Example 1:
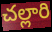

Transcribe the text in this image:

చల్లారి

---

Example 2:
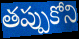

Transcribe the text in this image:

తప్పుకోని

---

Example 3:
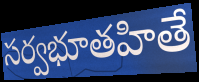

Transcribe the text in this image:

సర్వభూతహితే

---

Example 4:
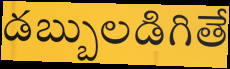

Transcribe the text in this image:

డబ్బులడిగితే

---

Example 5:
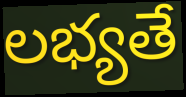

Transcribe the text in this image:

లభ్యతే